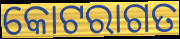
କୋଟରାଗତ